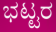
ಭಟ್ಟರ